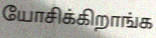
யோசிக்கிறாங்க